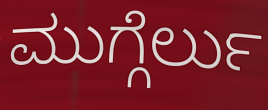
ಮುಗ್ಗೆರ್ಲು